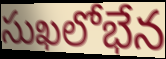
సుఖలోభేన